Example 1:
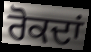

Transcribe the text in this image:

ਰੋਕਦਾਂ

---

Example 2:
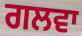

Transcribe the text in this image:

ਗਲਵਾ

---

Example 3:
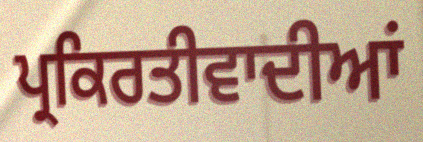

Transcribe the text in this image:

ਪ੍ਰਕਿਰਤੀਵਾਦੀਆਂ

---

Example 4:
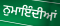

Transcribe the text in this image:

ਨੁਮਾਇੰਦੀਆਂ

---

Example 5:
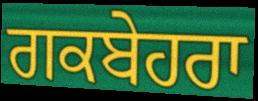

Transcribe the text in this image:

ਗਕਬੇਹਰਾ